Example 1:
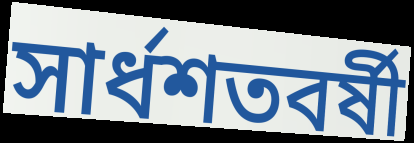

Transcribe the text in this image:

সার্ধশতবর্ষী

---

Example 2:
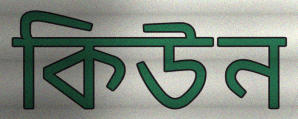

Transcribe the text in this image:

কিউন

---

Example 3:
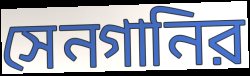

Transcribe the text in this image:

সেনগানির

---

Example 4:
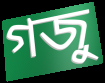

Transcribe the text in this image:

গজু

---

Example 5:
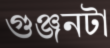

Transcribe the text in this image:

গুঞ্জনটা